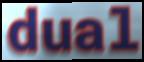
dual